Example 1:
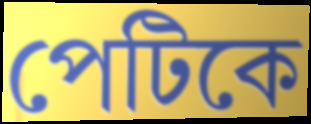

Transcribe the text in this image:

পেটিকে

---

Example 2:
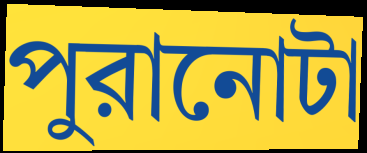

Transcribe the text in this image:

পুরানোটা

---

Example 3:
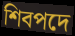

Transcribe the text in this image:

শিবপদে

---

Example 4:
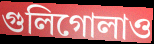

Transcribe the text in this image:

গুলিগোলাও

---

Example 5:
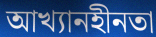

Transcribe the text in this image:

আখ্যানহীনতা